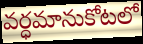
వర్ధమానుకోటలో